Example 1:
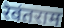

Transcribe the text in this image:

रेवंतराम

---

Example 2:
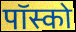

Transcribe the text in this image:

पॉस्को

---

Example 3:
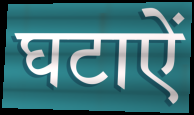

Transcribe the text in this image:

घटाऐं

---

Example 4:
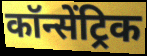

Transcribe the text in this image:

कॉन्सेंट्रिक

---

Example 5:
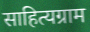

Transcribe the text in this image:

साहित्यग्राम